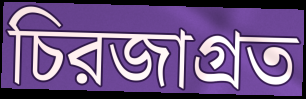
চিরজাগ্রত